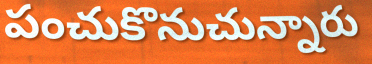
పంచుకొనుచున్నారు